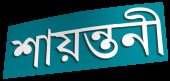
শায়ন্তনী